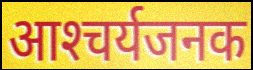
आश्‍चर्यजनक